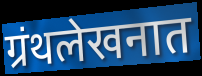
ग्रंथलेखनात